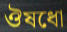
ঔষধো